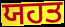
ਯਹਤ